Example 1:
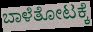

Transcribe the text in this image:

ಬಾಳೆತೋಟಕ್ಕೆ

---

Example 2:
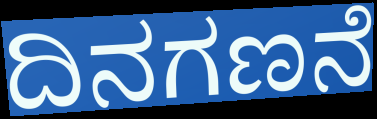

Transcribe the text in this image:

ದಿನಗಣನೆ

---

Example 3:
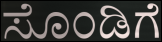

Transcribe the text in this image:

ಸೊಂಡಿಗೆ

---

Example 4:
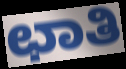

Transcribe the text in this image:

ಛಾತಿ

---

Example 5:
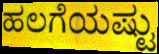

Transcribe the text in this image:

ಹಲಗೆಯಷ್ಟು